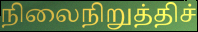
நிலைநிறுத்திச்